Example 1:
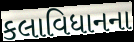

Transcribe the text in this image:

કલાવિધાનના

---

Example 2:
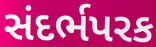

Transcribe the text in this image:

સંદર્ભપરક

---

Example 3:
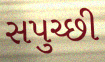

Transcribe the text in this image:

સપુચ્છી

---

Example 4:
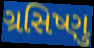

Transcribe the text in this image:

ગ્રસિષ્ણુ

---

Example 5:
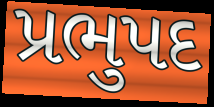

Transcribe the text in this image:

પ્રભુપદ